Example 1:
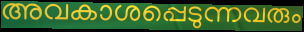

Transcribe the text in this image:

അവകാശപ്പെടുന്നവരും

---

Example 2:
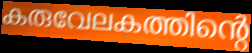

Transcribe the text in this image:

കരുവേലകത്തിന്റെ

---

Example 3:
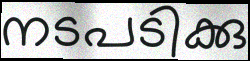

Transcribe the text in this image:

നടപടിക്കു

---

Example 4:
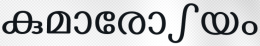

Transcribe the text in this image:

കുമാരോഽയം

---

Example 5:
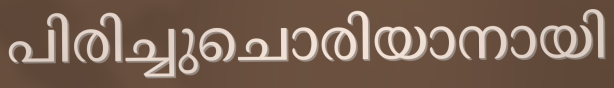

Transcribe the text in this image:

പിരിച്ചുചൊരിയാനായി